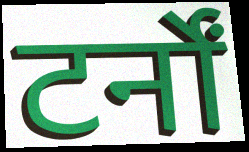
टर्नों